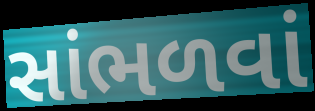
સાંભળવાં